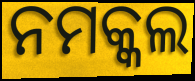
ନମକ୍କଲ